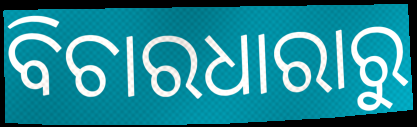
ବିଚାରଧାରାରୁ